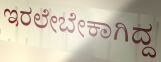
ಇರಲೇಬೇಕಾಗಿದ್ದ